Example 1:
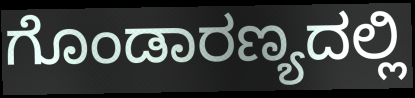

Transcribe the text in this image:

ಗೊಂಡಾರಣ್ಯದಲ್ಲಿ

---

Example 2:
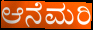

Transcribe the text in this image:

ಆನೆಮರಿ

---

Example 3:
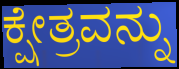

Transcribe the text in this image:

ಕ್ಷೇತ್ರವನ್ನು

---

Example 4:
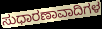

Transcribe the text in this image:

ಸುಧಾರಣಾವಾದಿಗಳ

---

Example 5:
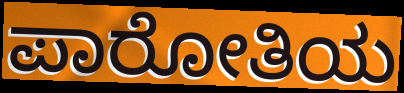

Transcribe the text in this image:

ಪಾರೋತಿಯ